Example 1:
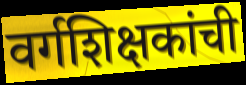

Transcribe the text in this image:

वर्गशिक्षकांची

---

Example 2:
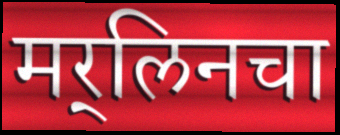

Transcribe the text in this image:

मर्लिनचा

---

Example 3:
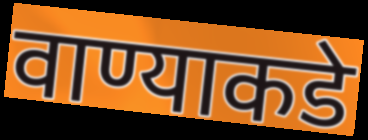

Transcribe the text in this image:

वाण्याकडे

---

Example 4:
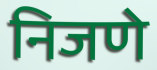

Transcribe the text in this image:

निजणे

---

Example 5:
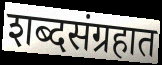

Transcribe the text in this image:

शब्दसंग्रहात